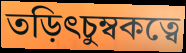
তড়িৎচুম্বকত্বে